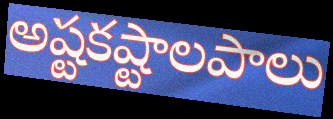
అష్టకష్టాలపాలు